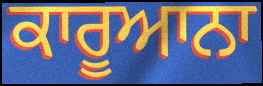
ਕਾਰੂਆਨਾ